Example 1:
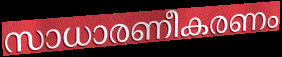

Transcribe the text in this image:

സാധാരണീകരണം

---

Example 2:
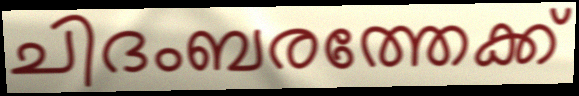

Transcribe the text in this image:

ചിദംബരത്തേക്ക്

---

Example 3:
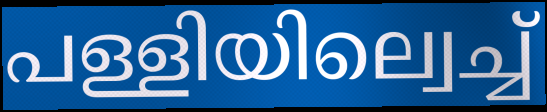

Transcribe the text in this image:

പള്ളിയില്വെച്ച്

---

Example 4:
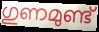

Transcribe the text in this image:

ഗുണമുണ്ട്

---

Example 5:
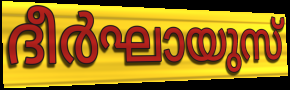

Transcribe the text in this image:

ദീർഘായുസ്